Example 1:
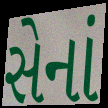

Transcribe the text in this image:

સેનાં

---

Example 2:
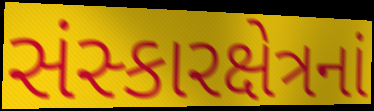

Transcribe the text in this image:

સંસ્કારક્ષેત્રનાં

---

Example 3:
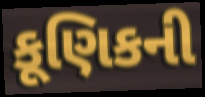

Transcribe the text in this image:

કૂણિકની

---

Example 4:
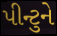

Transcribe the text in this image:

પીન્ટુને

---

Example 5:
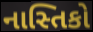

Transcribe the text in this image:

નાસ્તિકો